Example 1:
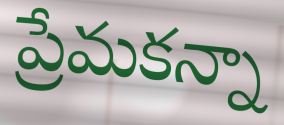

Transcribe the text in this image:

ప్రేమకన్నా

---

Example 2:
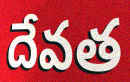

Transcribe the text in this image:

దేవత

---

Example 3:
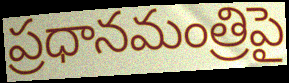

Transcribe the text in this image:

ప్రధానమంత్రిపై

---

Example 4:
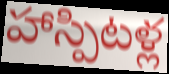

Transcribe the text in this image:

హాస్పిటళ్ల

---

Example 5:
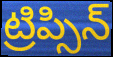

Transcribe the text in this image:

ట్రిప్సిన్